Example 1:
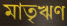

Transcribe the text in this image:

মাতৃঋণ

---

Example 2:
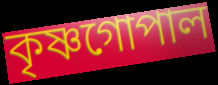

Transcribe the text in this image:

কৃষ্ণগোপাল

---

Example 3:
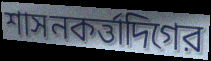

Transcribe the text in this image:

শাসনকর্ত্তাদিগের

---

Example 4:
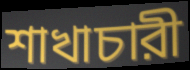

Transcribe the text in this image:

শাখাচারী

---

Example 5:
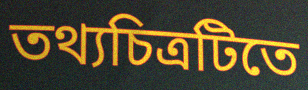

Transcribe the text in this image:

তথ্যচিত্রটিতে